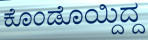
ಕೊಂಡೊಯ್ದಿದ್ದ